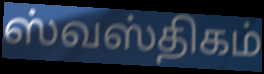
ஸ்வஸ்திகம்